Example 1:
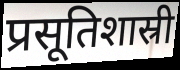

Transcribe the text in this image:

प्रसूतिशास्री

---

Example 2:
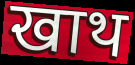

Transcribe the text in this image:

खाथ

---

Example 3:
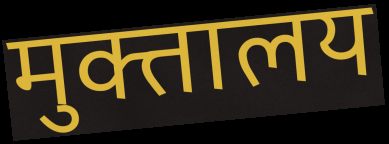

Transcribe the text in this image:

मुक्तालय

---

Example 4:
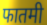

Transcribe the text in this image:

फातमी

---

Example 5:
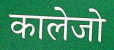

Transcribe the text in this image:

कालेजो